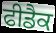
ਫੀਡੈਕ